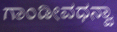
ಗಾಂಡೀವಧನ್ವಾ